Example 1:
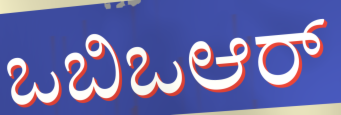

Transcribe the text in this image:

ಒಬಿಒಆರ್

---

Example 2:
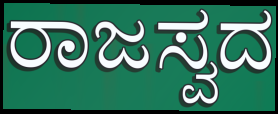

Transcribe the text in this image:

ರಾಜಸ್ವದ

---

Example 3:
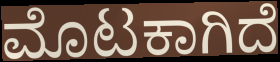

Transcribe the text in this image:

ಮೊಟಕಾಗಿದೆ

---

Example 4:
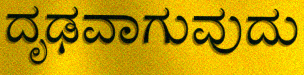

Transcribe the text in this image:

ದೃಢವಾಗುವುದು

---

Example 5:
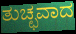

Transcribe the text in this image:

ತುಚ್ಛವಾದ